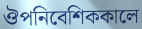
ঔপনিবেশিককালে